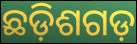
ଛଡ଼ିଶଗଡ଼